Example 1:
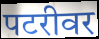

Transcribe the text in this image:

पटरीवर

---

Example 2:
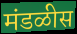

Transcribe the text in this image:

मंडळीस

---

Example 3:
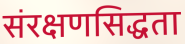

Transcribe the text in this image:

संरक्षणसिद्धता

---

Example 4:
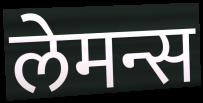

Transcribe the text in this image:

लेमन्स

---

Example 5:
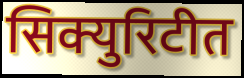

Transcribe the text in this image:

सिक्युरिटीत